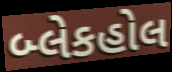
બ્લેકહોલ